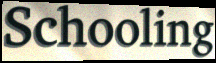
Schooling